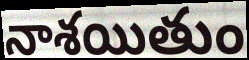
నాశయితుం